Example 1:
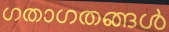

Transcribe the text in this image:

ഗതാഗതങ്ങൾ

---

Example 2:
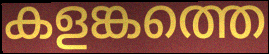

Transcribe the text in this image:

കളങ്കത്തെ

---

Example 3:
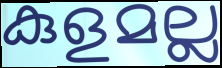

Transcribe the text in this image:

കുളമല്ല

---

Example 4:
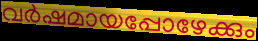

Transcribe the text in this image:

വർഷമായപ്പോഴേക്കും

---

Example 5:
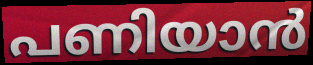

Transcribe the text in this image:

പണിയാൻ